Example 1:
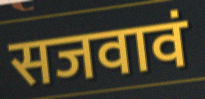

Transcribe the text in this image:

सजवावं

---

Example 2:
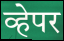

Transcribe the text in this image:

व्हेपर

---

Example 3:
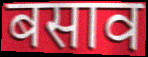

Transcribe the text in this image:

बसाव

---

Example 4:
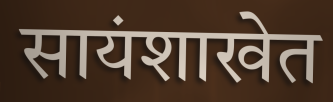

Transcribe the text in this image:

सायंशाखेत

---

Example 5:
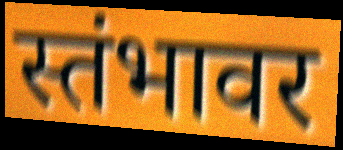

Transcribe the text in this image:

स्तंभावर